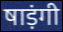
षाड़ंगी